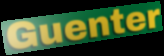
Guenter